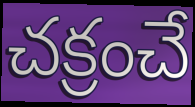
చక్రంచే